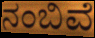
ನಂಬಿವೆ